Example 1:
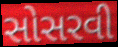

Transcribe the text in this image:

સોસરવી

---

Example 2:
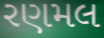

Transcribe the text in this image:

રણમલ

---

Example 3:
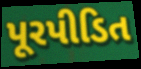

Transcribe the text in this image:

પૂરપીડિત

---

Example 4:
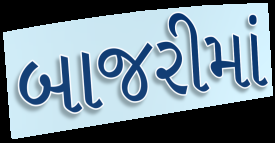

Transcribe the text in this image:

બાજરીમાં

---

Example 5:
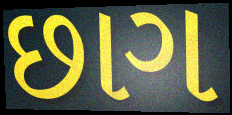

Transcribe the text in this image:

છાગ